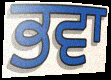
ਭਵਾ